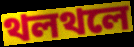
থলথলে